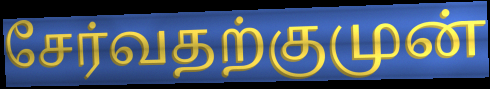
சேர்வதற்குமுன்